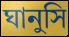
ঘানুসি